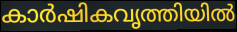
കാർഷികവൃത്തിയിൽ